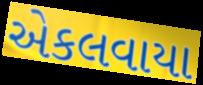
એકલવાયા